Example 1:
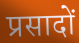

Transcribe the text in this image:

प्रसादों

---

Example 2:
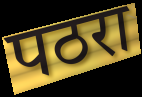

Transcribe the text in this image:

पठरा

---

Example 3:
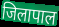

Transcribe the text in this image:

जिलापाल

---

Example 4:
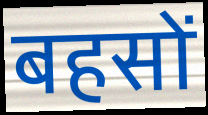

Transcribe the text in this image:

बहसों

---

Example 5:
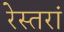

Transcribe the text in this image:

रेस्तरां